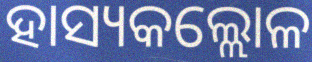
ହାସ୍ୟକଲ୍ଲୋଳ